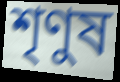
শৃণুষ